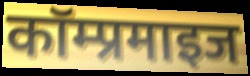
कॉम्प्रमाइज